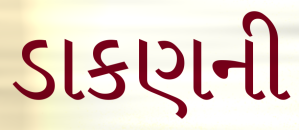
ડાકણની